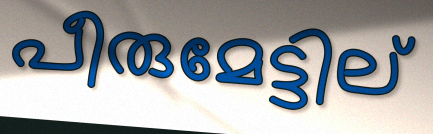
പീരുമേട്ടില്